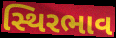
સ્થિરભાવ